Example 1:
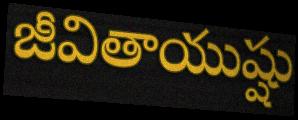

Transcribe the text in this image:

జీవితాయుష్షు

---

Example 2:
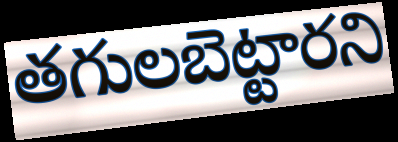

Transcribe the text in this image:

తగులబెట్టారని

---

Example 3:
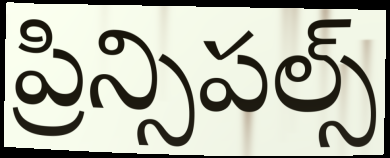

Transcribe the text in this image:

ప్రిన్సిపల్స్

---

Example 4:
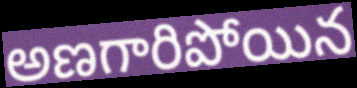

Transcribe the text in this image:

అణగారిపోయిన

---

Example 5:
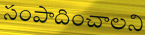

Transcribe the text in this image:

సంపాదించాలని